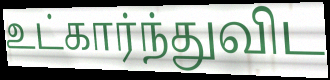
உட்கார்ந்துவிட